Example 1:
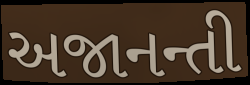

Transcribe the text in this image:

અજાનન્તી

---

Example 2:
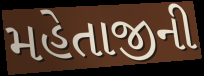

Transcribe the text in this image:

મહેતાજીની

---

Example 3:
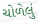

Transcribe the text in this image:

ચોળેલું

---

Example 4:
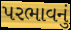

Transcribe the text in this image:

પરભાવનું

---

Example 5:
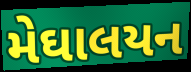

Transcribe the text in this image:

મેઘાલયન